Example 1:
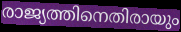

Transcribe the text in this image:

രാജ്യത്തിനെതിരായും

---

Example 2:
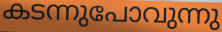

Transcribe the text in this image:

കടന്നുപോവുന്നു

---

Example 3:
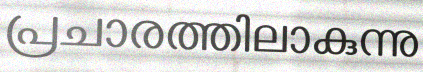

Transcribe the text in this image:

പ്രചാരത്തിലാകുന്നു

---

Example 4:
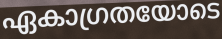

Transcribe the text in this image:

ഏകാഗ്രതയോടെ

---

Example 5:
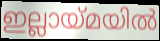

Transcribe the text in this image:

ഇല്ലായ്മയിൽ